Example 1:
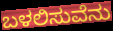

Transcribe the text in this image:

ಬಳಲಿಸುವೆನು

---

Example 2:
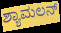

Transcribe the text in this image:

ಶ್ಯಾಮಲನ್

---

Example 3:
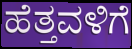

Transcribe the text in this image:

ಹೆತ್ತವಳಿಗೆ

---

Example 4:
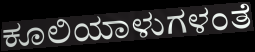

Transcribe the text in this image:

ಕೂಲಿಯಾಳುಗಳಂತೆ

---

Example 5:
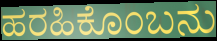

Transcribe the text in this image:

ಹರಹಿಕೊಂಬನು